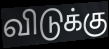
விடுக்கு